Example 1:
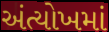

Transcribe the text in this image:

અંત્યોખમાં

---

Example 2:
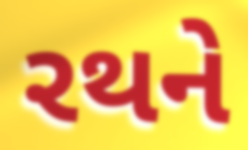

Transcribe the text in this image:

રથને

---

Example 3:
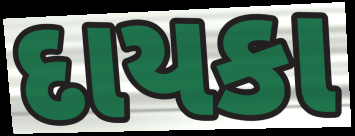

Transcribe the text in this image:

દાયકા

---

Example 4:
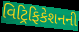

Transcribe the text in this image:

વિટ્રિફિકેશનની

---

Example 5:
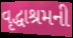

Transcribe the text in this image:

વૃદ્ધાશ્રમની